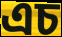
এচ